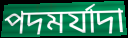
পদমর্যাদা